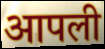
आपली